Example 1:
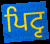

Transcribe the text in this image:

ਪਿਟ੍ਟ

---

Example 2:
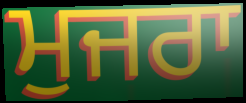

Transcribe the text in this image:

ਮੁਜਰਾ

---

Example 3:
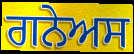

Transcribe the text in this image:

ਗਨੇਅਸ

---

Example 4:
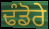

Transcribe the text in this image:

ਢੰਡੋਰੇ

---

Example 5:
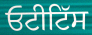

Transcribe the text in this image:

ਓਟੀਟਿੱਸ